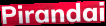
Pirandai